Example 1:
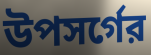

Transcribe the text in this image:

উপসর্গের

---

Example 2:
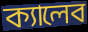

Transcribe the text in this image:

ক্যালেব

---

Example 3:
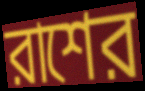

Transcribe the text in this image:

রাশের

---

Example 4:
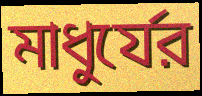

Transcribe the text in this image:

মাধুর্যের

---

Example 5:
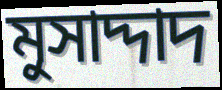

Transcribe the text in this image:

মুসাদ্দাদ